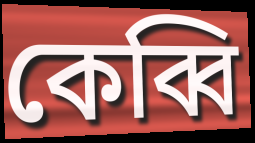
কেব্বি